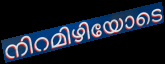
നിറമിഴിയോടെ